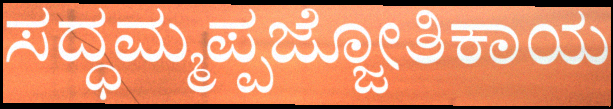
ಸದ್ಧಮ್ಮಪ್ಪಜ್ಜೋತಿಕಾಯ